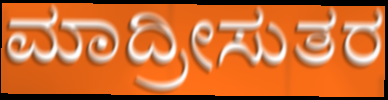
ಮಾದ್ರೀಸುತರ